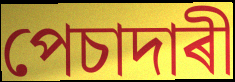
পেচাদাৰী